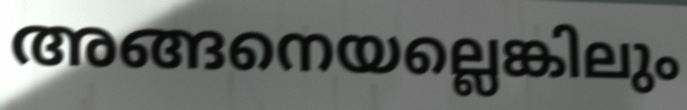
അങ്ങനെയല്ലെങ്കിലും